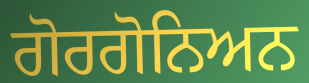
ਗੋਰਗੋਨਿਅਨ